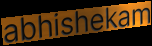
abhishekam